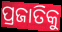
ପ୍ରଜାତିକୁ